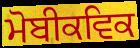
ਮੋਬੀਕਵਿਕ